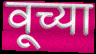
वूच्या